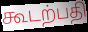
கூடற்பதி